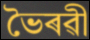
ভৈৰৱী